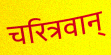
चरित्रवान्